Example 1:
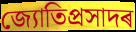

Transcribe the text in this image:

জ্যোতিপ্ৰসাদৰ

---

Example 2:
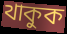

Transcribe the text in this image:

থাকুক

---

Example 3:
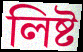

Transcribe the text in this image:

লিষ্ট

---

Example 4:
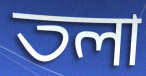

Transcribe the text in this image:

তলা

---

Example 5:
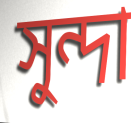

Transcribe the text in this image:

সুন্দা